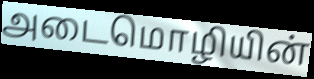
அடைமொழியின்